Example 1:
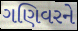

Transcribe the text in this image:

ગણિવરને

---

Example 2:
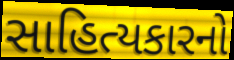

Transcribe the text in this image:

સાહિત્યકારનો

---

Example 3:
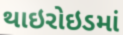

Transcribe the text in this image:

થાઇરોઇડમાં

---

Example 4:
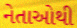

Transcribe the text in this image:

નેતાઓથી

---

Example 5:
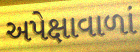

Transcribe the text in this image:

અપેક્ષાવાળાં